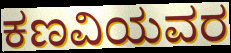
ಕಣವಿಯವರ